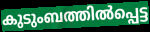
കുടുംബത്തിൽപ്പെട്ട